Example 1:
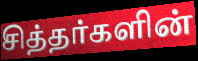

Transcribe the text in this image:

சித்தர்களின்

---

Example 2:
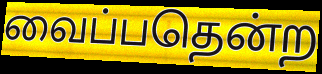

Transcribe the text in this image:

வைப்பதென்ற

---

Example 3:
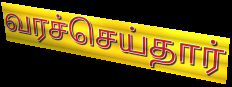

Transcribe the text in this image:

வரச்செய்தார்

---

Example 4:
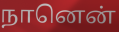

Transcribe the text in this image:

நானென்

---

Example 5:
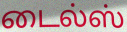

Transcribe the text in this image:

டைல்ஸ்